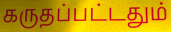
கருதப்பட்டதும்